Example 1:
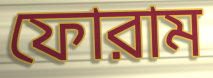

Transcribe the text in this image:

ফোরাম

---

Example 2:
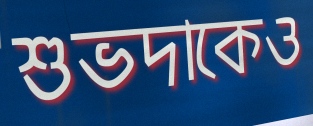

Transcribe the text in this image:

শুভদাকেও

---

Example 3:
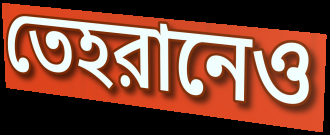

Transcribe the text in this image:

তেহরানেও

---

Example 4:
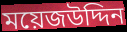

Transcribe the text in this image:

ময়েজউদ্দিন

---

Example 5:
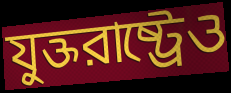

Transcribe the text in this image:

যুক্তরাষ্ট্রেও